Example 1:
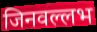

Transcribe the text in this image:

जिनवल्लभ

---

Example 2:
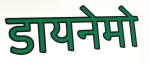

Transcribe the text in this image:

डायनेमो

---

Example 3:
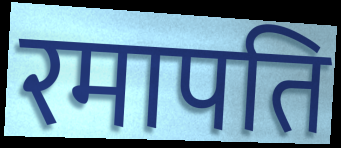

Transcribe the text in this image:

रमापति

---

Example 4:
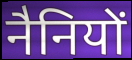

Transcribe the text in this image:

नैनियों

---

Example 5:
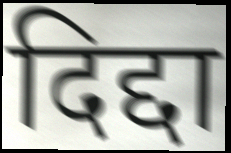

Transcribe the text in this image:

दिद्दा